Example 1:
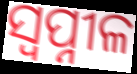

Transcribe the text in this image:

ସ୍ୱପ୍ନୀଳ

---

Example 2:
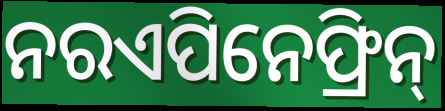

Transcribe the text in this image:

ନରଏପିନେଫ୍ରିନ୍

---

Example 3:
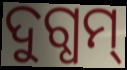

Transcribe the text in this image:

ଦୁଗ୍ଧମ୍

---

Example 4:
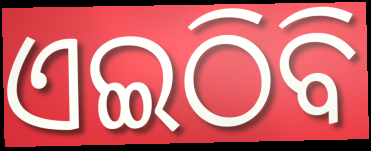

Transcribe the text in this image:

ଏଇଠିବି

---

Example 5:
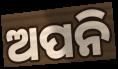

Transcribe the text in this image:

ଅପନି